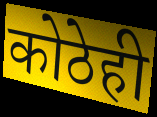
कोठेही